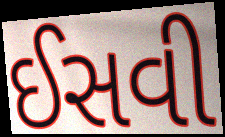
ઈસવી